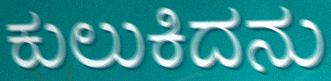
ಕುಲುಕಿದನು